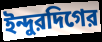
ইন্দুরদিগের